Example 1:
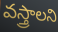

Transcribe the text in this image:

వస్త్రాలని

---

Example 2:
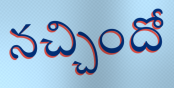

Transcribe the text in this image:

నచ్చిందో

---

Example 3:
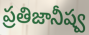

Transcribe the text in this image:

ప్రతిజానీష్వ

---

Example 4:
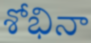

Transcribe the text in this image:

శోభినా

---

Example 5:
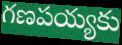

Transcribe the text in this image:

గణపయ్యకు